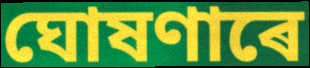
ঘোষণাৰে